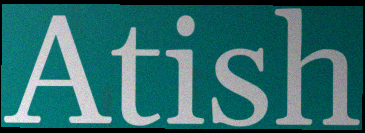
Atish